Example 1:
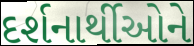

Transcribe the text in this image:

દર્શનાર્થીઓને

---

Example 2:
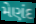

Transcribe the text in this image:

મેણંદ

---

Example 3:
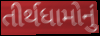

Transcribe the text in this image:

તીર્થધામોનું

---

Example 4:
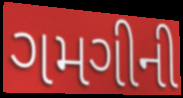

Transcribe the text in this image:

ગમગીની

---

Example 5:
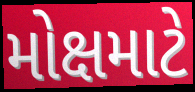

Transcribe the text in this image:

મોક્ષમાટે